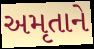
અમૃતાને